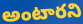
అంటారని